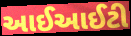
આઈઆઈટી